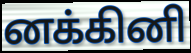
னக்கினி